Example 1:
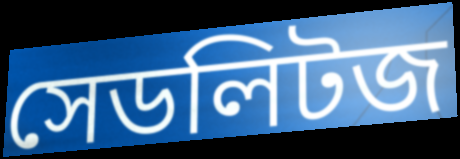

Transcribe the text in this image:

সেডলিটজ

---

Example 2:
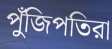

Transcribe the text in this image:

পুঁজিপতিরা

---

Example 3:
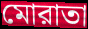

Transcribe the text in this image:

মোরাতা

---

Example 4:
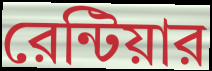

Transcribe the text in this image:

রেন্টিয়ার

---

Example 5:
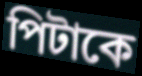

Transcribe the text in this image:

পিটাকে